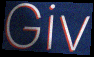
Giv